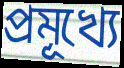
প্ৰমূখ্যে